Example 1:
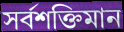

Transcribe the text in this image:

সর্বশক্তিমান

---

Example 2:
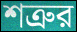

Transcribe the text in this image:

শত্রুর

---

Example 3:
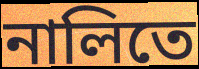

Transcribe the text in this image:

নালিতে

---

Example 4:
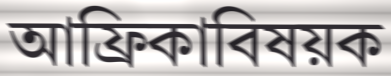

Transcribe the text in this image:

আফ্রিকাবিষয়ক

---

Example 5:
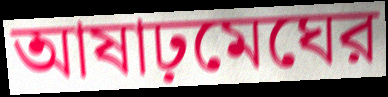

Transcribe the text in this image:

আষাঢ়মেঘের